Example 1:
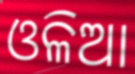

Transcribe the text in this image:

ଓଳିଆ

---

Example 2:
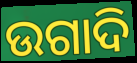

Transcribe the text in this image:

ଉଗାଦି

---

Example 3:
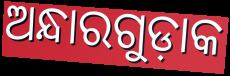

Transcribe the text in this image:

ଅନ୍ଧାରଗୁଡ଼ାକ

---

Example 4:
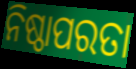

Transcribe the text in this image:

ନିଷ୍ଠାପରତା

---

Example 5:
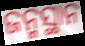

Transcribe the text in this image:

ଜନ୍ମସ୍ଥାନ